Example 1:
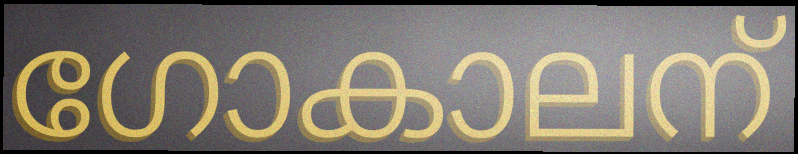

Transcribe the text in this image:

ഗോകാലന്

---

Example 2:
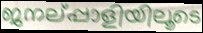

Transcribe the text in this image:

ജനല്പ്പാളിയിലൂടെ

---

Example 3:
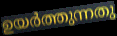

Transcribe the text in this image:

ഉയർത്തുന്നതു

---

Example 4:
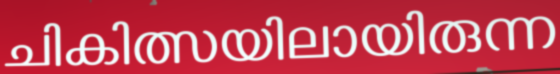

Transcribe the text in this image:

ചികിത്സയിലായിരുന്ന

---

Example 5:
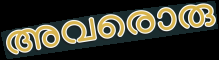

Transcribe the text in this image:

അവരൊരു